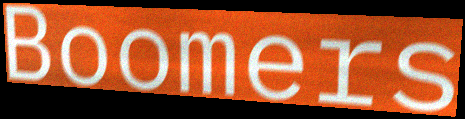
Boomers